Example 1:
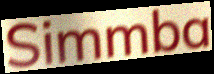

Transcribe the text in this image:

Simmba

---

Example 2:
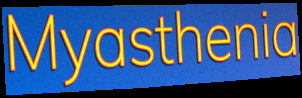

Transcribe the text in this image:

Myasthenia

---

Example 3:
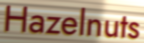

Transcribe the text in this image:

Hazelnuts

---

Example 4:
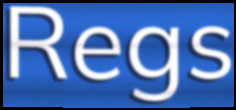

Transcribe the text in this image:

Regs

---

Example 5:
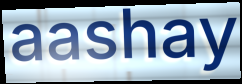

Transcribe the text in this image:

aashay